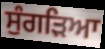
ਸੁੰਗੜਿਆ